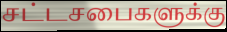
சட்டசபைகளுக்கு